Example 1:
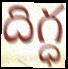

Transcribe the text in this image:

దిగ్ధ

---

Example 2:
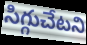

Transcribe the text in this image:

సిగ్గుచేటని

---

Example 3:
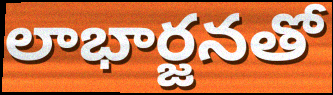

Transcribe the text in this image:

లాభార్జనతో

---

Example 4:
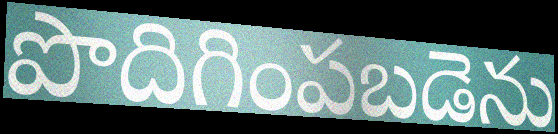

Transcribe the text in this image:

పొదిగింపబడెను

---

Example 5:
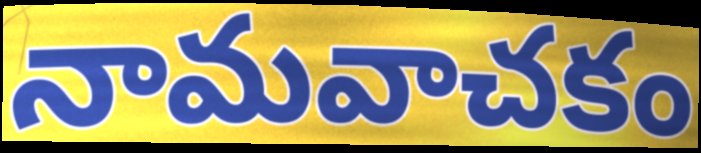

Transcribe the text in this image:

నామవాచకం